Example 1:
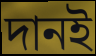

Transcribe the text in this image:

দানই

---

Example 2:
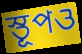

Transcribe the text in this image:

স্তূপও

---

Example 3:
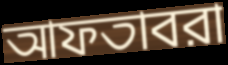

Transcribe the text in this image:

আফতাবরা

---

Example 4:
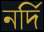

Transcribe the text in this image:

নর্দি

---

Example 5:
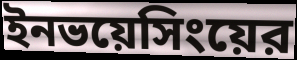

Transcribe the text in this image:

ইনভয়েসিংয়ের